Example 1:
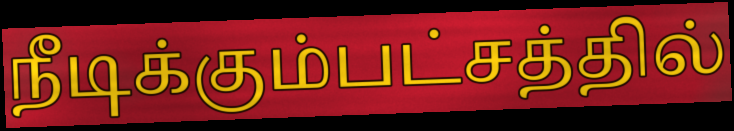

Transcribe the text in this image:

நீடிக்கும்பட்சத்தில்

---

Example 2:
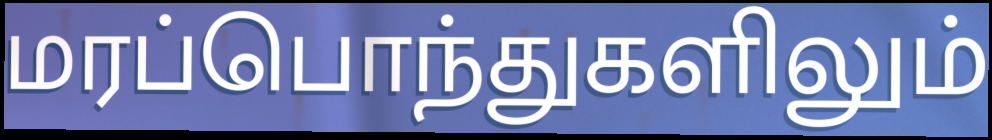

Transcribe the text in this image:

மரப்பொந்துகளிலும்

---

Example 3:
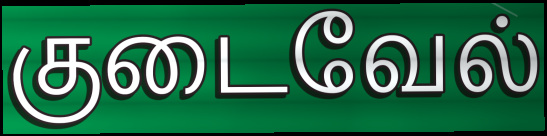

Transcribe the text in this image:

குடைவேல்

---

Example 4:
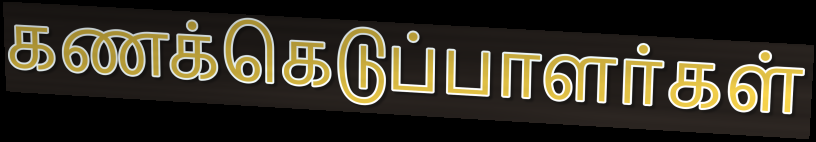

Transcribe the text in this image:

கணக்கெடுப்பாளர்கள்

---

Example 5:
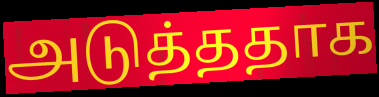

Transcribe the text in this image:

அடுத்ததாக